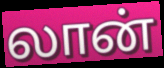
லான்